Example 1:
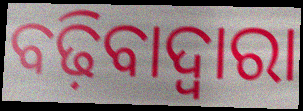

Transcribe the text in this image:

ବଢ଼ିବାଦ୍ୱାରା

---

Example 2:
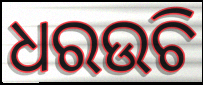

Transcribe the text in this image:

ଧରଉଚି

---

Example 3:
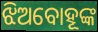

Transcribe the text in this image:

ଝିଅବୋହୂଙ୍କ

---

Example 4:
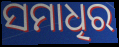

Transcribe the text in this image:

ସମାଧିର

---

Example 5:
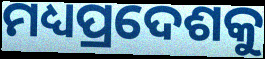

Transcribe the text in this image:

ମଧ୍ୟପ୍ରଦେଶକୁ